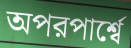
অপরপার্শ্বে